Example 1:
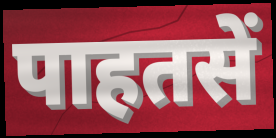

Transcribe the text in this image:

पाहतसें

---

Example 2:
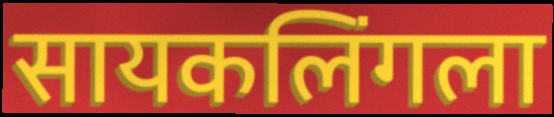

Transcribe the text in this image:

सायकलिंगला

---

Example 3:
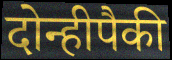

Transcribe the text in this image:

दोन्हीपैकी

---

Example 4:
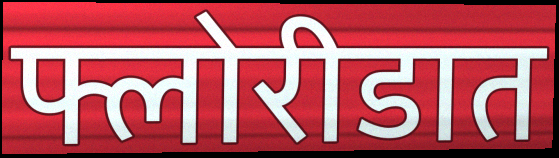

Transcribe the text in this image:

फ्लोरीडात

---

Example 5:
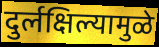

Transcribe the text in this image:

दुर्लक्षिल्यामुळे